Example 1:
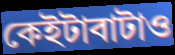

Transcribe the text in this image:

কেইটাবাটাও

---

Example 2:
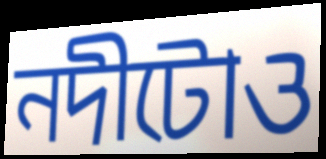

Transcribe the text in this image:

নদীটোও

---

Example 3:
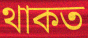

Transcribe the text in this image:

থাকত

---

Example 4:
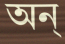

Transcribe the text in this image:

অন্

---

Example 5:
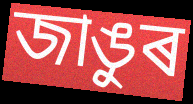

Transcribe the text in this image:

জাঙুৰ